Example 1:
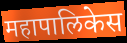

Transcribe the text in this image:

महापालिकेस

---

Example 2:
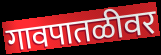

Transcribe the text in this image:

गावपातळीवर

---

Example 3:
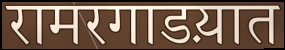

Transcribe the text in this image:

रामरगाडय़ात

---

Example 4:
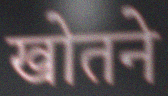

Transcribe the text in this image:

खोतने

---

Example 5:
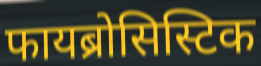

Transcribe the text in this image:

फायब्रोसिस्टिक